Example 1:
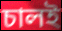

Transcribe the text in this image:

চালই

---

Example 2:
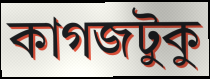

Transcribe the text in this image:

কাগজটুকু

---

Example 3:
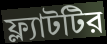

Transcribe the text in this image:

ফ্ল্যাটটির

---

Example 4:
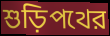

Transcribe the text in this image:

শুড়িপথের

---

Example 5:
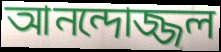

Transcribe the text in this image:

আনন্দোজ্জল